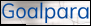
Goalpara